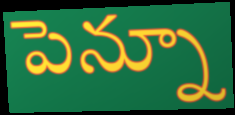
పెన్నూ